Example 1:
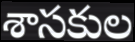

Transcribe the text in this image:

శాసకుల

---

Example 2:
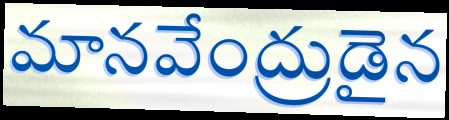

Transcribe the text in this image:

మానవేంద్రుడైన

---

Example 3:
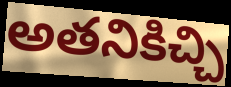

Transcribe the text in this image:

అతనికిచ్చి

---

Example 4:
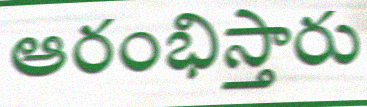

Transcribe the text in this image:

ఆరంభిస్తారు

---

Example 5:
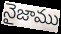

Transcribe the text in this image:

నైజాము